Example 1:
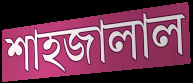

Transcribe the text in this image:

শাহজালাল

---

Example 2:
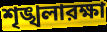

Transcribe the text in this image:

শৃঙ্খলারক্ষা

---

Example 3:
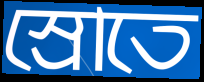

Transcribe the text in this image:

স্রোতে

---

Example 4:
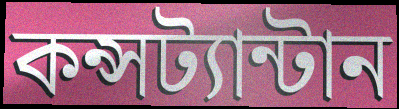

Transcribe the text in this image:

কন্সট্যান্টান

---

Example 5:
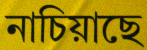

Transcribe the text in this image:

নাচিয়াছে